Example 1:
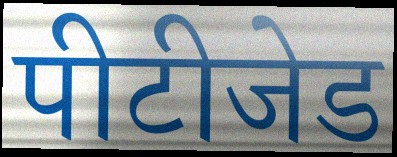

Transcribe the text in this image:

पीटीजेड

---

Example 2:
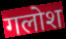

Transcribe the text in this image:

गलोश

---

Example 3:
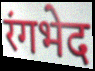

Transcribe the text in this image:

रंगभेद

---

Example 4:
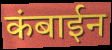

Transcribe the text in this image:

कंबाईन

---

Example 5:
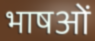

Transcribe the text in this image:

भाषओं